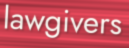
lawgivers